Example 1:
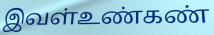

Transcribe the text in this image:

இவள்உண்கண்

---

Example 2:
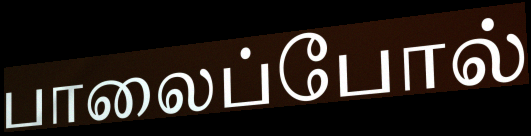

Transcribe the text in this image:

பாலைப்போல்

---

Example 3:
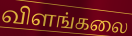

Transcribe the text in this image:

விளங்கலை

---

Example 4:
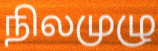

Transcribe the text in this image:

நிலமுழு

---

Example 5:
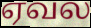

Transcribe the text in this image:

ஏவல